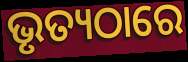
ଭୃତ୍ୟଠାରେ